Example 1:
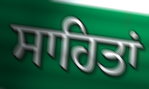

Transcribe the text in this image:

ਸਾਹਿਤਾਂ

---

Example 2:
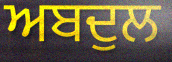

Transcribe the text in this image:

ਅਬਦੁਲ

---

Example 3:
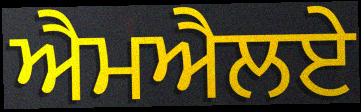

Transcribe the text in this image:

ਐਮਐਲਏ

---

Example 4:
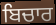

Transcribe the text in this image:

ਬਿਚਾਰ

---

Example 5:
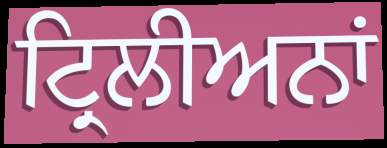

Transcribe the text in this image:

ਟ੍ਰਿਲੀਅਨਾਂ